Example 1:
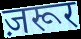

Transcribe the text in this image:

ज़रूर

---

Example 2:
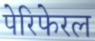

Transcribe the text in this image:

पेरिफेरल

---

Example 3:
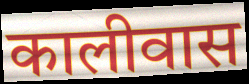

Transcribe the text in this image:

कालीवास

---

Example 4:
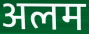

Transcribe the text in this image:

अलम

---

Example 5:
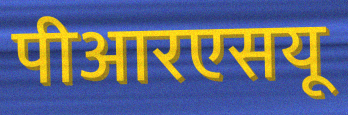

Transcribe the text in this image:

पीआरएसयू